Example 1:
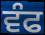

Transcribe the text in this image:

ਵੰਫ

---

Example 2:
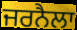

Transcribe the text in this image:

ਜਰਨੈਲਾ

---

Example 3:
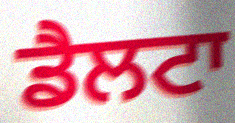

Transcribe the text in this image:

ਡੈਲਟਾ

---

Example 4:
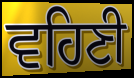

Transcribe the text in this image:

ਵਹਿਣੀ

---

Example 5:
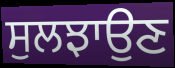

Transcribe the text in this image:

ਸੁਲਝਾਉਣ